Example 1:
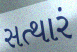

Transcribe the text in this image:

સત્થારં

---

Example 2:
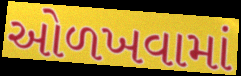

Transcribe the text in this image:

ઓળખવામાં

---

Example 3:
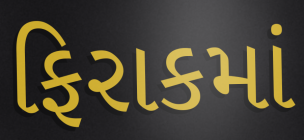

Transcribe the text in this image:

ફિરાકમાં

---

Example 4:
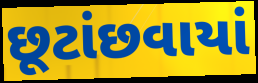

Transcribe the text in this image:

છૂટાંછવાયાં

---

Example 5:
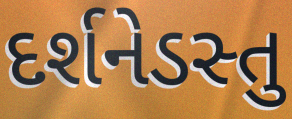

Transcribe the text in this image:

દર્શનેડસ્તુ